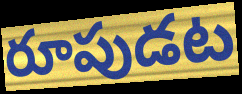
రూపుడట